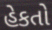
હેકતો